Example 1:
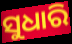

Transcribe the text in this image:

ସୁଧାରି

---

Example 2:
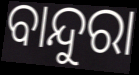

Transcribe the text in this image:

ବାନ୍ଦୁରା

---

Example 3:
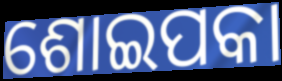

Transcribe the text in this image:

ଶୋଇପକା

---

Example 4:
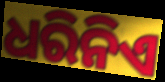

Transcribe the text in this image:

ଧରିନିଏ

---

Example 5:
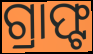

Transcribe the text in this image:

ଗ୍ରାଫ୍ଟ